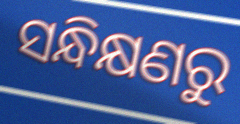
ସନ୍ଧିକ୍ଷଣରୁ